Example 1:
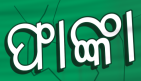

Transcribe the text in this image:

ଫାଙ୍କା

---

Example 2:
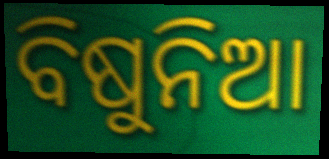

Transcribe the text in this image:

ବିଷୁନିଆ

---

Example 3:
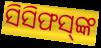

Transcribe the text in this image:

ସିସିଫସ୍‌ଙ୍କ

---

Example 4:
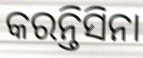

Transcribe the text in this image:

କରନ୍ତିସିନା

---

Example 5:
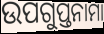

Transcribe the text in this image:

ଉପଗୁପ୍ତନାମା